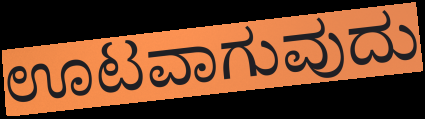
ಊಟವಾಗುವುದು